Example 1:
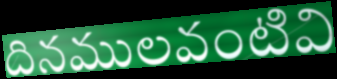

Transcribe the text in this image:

దినములవంటివి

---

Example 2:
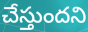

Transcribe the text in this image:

చేస్తుందని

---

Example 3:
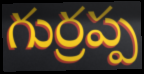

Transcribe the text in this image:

గుర్రప్ప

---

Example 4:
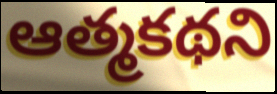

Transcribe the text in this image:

ఆత్మకథని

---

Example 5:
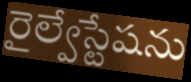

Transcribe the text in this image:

రైల్వేస్టేషను